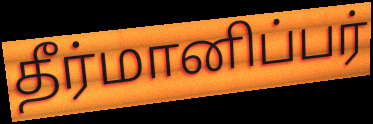
தீர்மானிப்பர்